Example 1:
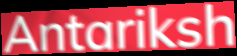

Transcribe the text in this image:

Antariksh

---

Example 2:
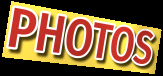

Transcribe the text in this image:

PHOTOS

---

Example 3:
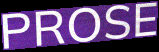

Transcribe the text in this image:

PROSE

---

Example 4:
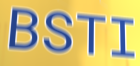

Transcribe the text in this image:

BSTI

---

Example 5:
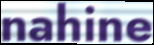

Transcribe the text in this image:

nahine